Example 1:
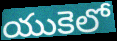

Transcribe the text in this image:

యుకెలో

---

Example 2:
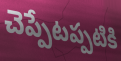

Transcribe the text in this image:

చెప్పేటప్పటికి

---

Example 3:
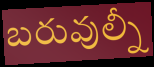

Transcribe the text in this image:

బరువుల్నీ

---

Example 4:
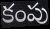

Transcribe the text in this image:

కంపు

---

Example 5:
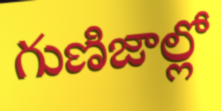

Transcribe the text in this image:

గుణిజాల్లో